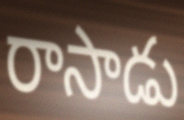
రాసాడు